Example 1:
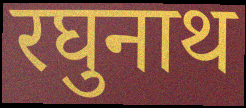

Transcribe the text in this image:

रघुनाथ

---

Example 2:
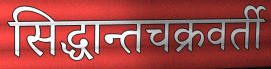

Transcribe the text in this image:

सिद्धान्तचक्रवर्ती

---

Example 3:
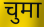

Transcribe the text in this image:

चुमा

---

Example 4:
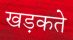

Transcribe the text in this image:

खड़कते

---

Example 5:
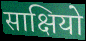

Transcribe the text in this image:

साक्षियो